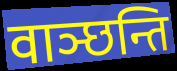
वाञ्छन्ति